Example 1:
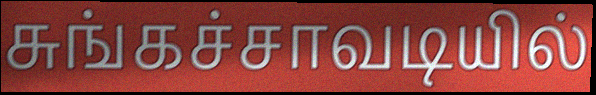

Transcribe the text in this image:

சுங்கச்சாவடியில்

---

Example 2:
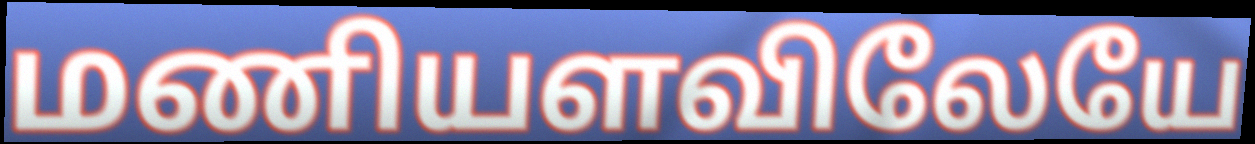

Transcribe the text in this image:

மணியளவிலேயே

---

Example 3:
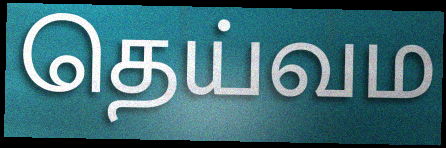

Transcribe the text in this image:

தெய்வம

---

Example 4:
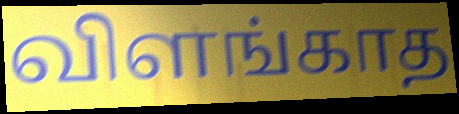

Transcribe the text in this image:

விளங்காத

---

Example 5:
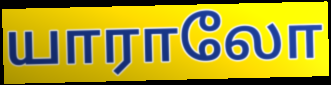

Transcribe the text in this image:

யாராலோ